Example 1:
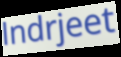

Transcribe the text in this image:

Indrjeet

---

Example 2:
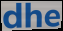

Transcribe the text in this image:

dhe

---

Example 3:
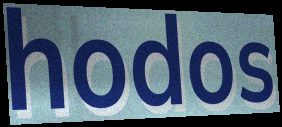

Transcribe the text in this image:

hodos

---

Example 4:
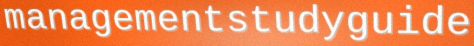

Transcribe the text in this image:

managementstudyguide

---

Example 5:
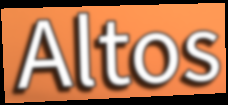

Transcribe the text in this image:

Altos